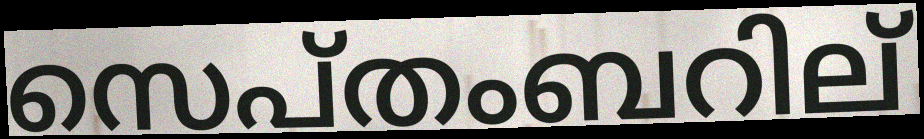
സെപ്തംബറില്